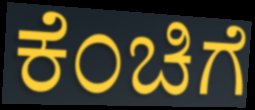
ಕೆಂಚಿಗೆ